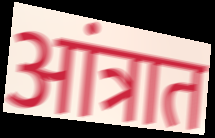
आंत्रात